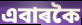
এবাৰকৈ